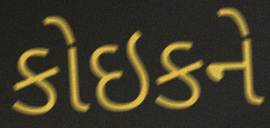
કોઇકને